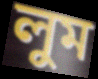
লুম